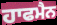
ਹਾਫਮੈਨ